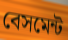
বেসমেন্ট